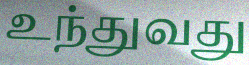
உந்துவது